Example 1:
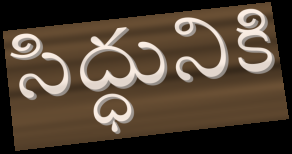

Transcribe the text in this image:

సిద్ధునికి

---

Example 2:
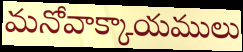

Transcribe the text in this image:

మనోవాక్కాయములు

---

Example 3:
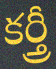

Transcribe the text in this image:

కర్త్రీ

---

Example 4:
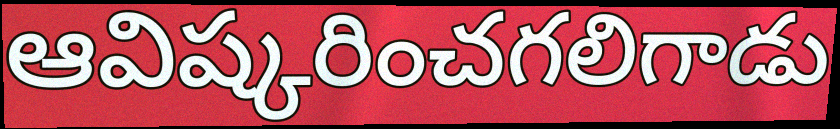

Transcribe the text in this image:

ఆవిష్కరించగలిగాడు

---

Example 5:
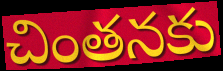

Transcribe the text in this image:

చింతనకు